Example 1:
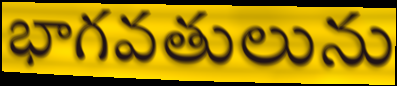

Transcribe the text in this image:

భాగవతులును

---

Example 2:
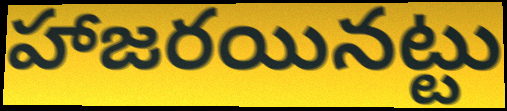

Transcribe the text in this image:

హాజరయినట్టు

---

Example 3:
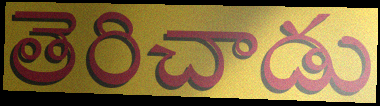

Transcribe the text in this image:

తెరిచాడు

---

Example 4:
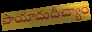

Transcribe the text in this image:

పాయాదుదీచ్యాం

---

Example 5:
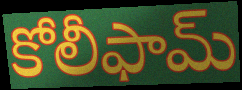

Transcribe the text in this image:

కోలీఫామ్